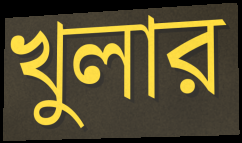
খুলার